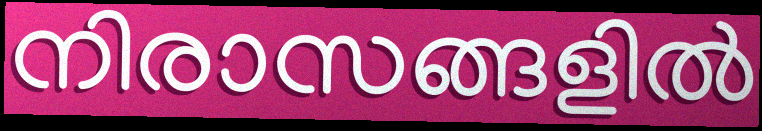
നിരാസങ്ങളിൽ